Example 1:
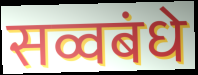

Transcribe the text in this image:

सव्वबंधे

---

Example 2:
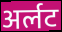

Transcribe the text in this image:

अर्लट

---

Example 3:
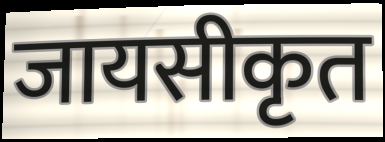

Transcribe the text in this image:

जायसीकृत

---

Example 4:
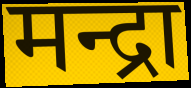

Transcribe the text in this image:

मन्द्रा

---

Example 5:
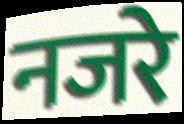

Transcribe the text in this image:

नजरे